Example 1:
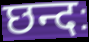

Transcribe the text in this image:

छन्दः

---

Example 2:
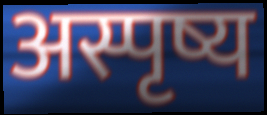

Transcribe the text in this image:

अस्पृष्य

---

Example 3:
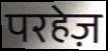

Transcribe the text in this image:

परहेज़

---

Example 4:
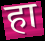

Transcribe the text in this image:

हा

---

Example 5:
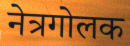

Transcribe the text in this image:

नेत्रगोलक